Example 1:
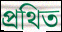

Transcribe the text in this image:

প্রথিত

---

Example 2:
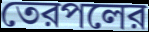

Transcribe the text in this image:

তেরপলের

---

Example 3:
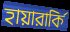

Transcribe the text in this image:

হায়ারার্কি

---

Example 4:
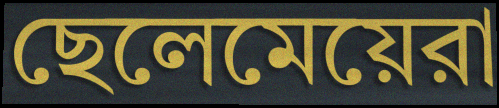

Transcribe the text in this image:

ছেলেমেয়েরা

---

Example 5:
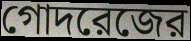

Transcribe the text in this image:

গোদরেজের